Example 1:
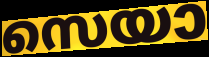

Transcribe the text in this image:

സെയാ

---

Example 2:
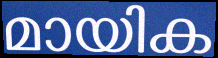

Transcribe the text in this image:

മായിക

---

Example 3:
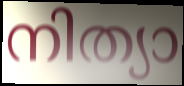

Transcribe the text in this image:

നിത്യാ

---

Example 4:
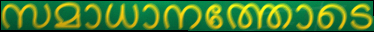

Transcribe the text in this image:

സമാധാനത്തോടെ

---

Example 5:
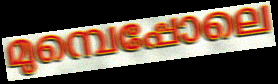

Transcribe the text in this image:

മുമ്പെപ്പോലെ